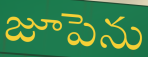
జూపెను